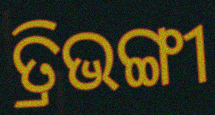
ତ୍ରିଭଙ୍ଗୀ